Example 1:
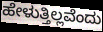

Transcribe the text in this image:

ಹೇಳುತ್ತಿಲ್ಲವೆಂದು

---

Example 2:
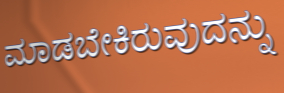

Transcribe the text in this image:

ಮಾಡಬೇಕಿರುವುದನ್ನು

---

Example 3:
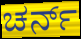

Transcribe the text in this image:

ಚರ್ನ್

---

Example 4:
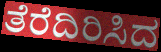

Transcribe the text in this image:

ತೆರೆದಿರಿಸಿದ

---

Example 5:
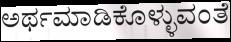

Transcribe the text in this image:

ಅರ್ಥಮಾಡಿಕೊಳ್ಳುವಂತೆ